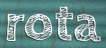
rota